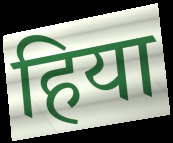
हिया